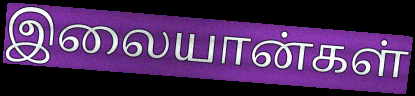
இலையான்கள்